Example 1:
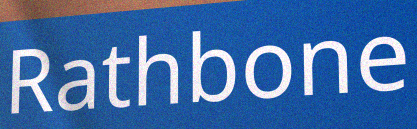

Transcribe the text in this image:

Rathbone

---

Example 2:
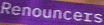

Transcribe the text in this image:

Renouncers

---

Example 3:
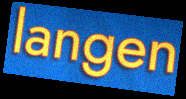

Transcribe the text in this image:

langen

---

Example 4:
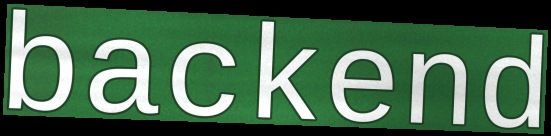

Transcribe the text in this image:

backend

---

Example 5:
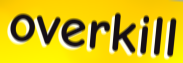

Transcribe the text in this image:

overkill